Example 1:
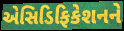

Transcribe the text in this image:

એસિડિફિકેશનને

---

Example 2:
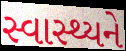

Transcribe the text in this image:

સ્વાસ્થ્યને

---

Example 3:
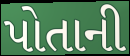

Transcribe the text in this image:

પોતાની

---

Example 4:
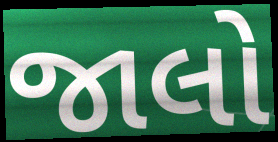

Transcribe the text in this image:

જાલો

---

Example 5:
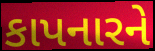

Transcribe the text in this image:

કાપનારને